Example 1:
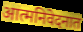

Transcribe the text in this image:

आत्मनिवेदनात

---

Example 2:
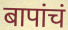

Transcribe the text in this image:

बापांचं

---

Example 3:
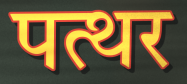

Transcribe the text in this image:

पत्थर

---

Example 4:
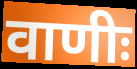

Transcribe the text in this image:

वाणीः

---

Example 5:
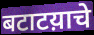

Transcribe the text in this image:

बटाटय़ाचे